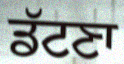
ਡੱਟਣਾ